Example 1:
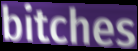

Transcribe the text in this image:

bitches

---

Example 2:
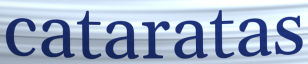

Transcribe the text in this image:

cataratas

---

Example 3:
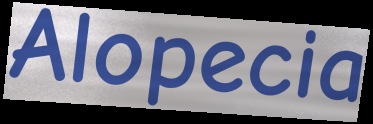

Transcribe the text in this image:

Alopecia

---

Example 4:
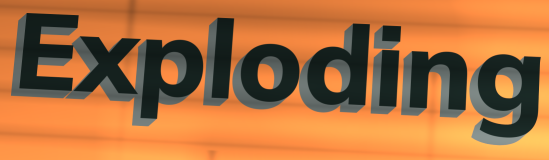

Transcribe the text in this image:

Exploding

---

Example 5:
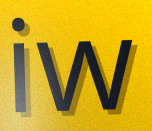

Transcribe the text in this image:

iw